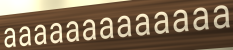
aaaaaaaaaaaaa